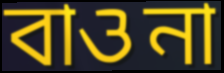
বাওনা